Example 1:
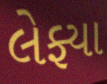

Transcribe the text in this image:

લેફ્યા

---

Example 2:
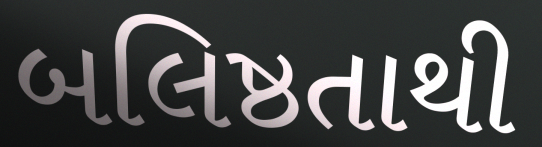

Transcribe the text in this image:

બલિષ્ઠતાથી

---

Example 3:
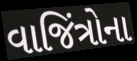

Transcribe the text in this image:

વાજિંત્રોના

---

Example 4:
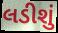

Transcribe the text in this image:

લડીશું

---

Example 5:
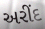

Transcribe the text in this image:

અરીંદ